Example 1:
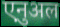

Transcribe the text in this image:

एनुअल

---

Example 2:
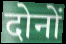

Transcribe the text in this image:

दोनों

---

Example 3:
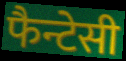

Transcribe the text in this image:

फैन्टेसी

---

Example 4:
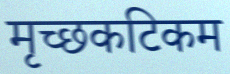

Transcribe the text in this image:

मृच्छकटिकम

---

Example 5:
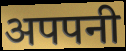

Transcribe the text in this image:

अपपनी